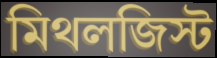
মিথলজিস্ট